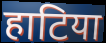
हाटिया